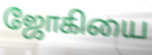
ஜோகியை